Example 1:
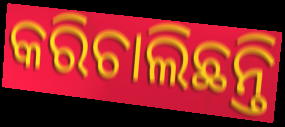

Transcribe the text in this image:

କରିଚାଲିଛନ୍ତି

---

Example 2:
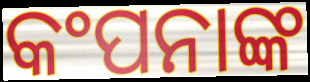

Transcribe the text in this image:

କଂପନାଙ୍କ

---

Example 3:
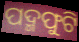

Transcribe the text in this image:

ପଦ୍ମଫୁଟି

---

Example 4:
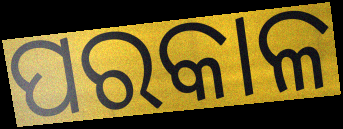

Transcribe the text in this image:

ପରକାଳ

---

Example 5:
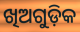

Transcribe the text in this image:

ଖିଅଗୁଡ଼ିକ